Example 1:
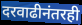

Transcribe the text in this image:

दरवाढीनंतरही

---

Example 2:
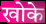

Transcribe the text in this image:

खोके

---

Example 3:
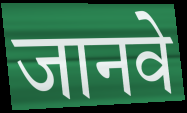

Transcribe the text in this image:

जानवे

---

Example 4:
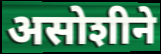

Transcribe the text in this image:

असोशीने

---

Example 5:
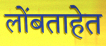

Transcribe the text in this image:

लोंबताहेत